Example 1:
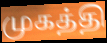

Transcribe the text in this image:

முகத்தி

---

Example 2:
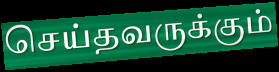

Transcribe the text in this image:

செய்தவருக்கும்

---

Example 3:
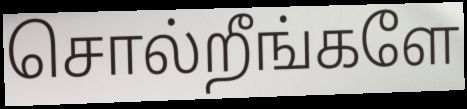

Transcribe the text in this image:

சொல்றீங்களே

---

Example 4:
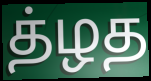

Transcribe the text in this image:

த்ழத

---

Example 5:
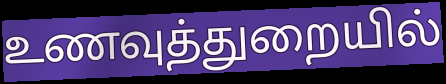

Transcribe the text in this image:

உணவுத்துறையில்